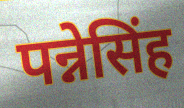
पन्नेसिंह